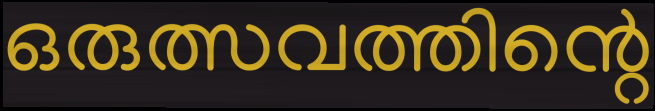
ഒരുത്സവത്തിന്റെ